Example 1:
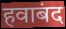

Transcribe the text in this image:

हवाबंद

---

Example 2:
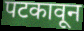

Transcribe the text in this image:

पटकावून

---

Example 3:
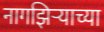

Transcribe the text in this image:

नागझिऱ्याच्या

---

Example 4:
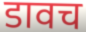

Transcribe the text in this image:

डावच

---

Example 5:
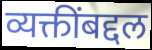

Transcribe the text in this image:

व्यक्तींबद्दल